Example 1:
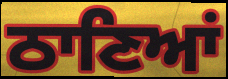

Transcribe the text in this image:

ਠਾਣਿਆਂ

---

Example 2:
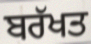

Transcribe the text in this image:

ਬਰੱਖਤ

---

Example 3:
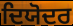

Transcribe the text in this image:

ਦਿਯੋਦਰ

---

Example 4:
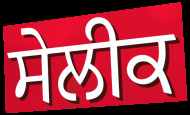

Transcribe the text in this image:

ਸੇਲੀਕ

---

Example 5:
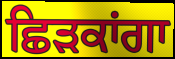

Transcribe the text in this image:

ਛਿੜਕਾਂਗਾ